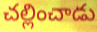
చల్లించాడు